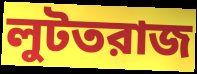
লুটতরাজ